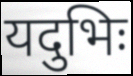
यदुभिः